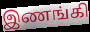
இணங்கி